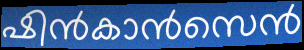
ഷിൻകാൻസെൻ